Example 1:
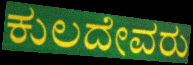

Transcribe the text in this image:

ಕುಲದೇವರು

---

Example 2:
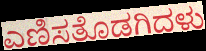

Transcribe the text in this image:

ಎಣಿಸತೊಡಗಿದಳು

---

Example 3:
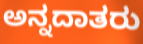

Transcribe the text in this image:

ಅನ್ನದಾತರು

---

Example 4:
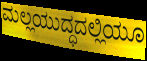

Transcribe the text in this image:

ಮಲ್ಲಯುದ್ಧದಲ್ಲಿಯೂ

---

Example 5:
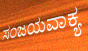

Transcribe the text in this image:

ಸಂಜಯವಾಕ್ಯ